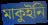
মাকুইনি